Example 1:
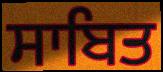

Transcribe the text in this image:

ਸਾਬਿਤ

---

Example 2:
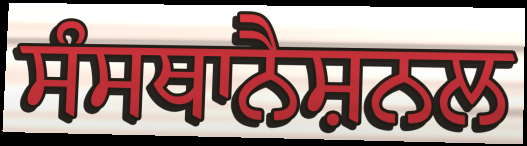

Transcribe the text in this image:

ਸੰਸਥਾਨੈਸ਼ਨਲ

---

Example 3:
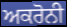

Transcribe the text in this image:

ਅਕਰੋਨੀ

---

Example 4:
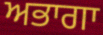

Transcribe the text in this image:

ਅਭਾਗਾ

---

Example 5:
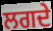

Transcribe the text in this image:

ਲਗਦੇ